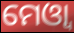
ମେଓ୍ୱା